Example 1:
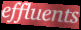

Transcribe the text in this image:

effluents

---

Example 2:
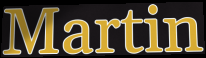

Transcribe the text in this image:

Martin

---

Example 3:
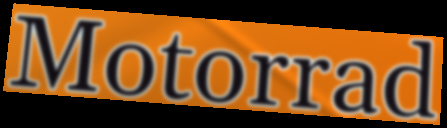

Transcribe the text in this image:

Motorrad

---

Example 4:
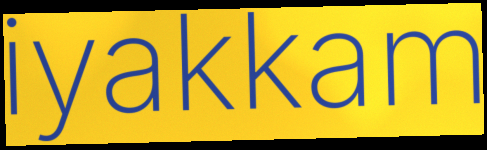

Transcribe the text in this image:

iyakkam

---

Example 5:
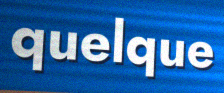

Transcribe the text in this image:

quelque